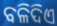
ବଳିଦିଏ